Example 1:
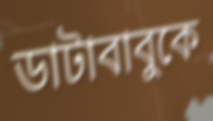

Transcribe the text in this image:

ডাটাবাবুকে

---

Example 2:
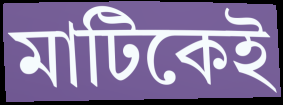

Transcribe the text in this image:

মাটিকেই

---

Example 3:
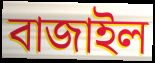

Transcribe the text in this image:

বাজাইল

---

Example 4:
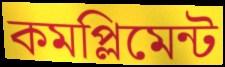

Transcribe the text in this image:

কমপ্লিমেন্ট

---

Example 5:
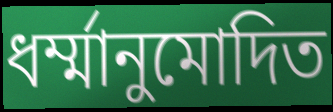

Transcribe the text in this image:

ধর্ম্মানুমোদিত